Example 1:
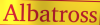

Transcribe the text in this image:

Albatross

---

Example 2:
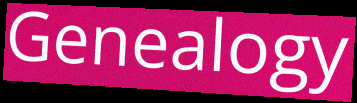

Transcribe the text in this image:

Genealogy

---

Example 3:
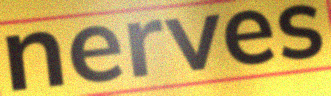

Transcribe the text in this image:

nerves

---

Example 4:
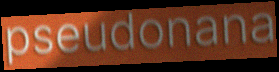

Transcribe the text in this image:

pseudonana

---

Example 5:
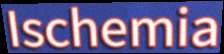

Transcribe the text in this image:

Ischemia